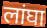
लांघा